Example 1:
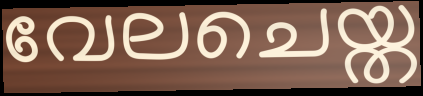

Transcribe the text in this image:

വേലചെയ്ത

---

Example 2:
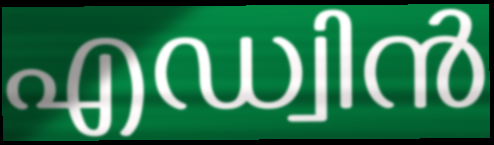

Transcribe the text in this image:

എഡ്വിൻ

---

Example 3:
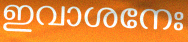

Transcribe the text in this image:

ഇവാശനേഃ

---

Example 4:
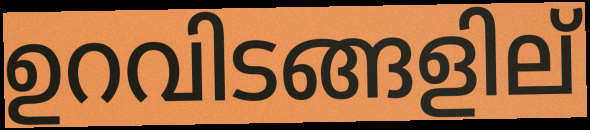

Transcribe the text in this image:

ഉറവിടങ്ങളില്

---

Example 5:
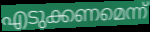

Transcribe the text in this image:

എടുക്കണമെന്ന്